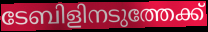
ടേബിളിനടുത്തേക്ക്